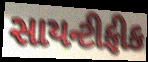
સાયન્ટીફીક